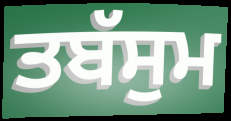
ਤਬੱਸੁਮ